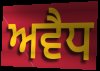
ਅਵੈਧ